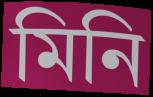
মিনি